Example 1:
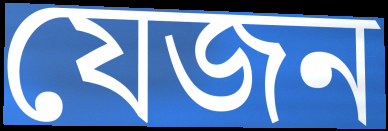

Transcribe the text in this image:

যেজন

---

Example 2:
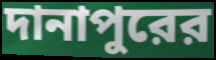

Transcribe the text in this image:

দানাপুরের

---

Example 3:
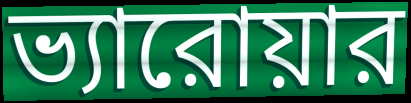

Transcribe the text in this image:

ভ্যারোয়ার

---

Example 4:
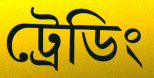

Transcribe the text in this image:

ট্রেডিং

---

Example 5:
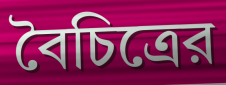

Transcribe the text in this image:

বৈচিত্রের